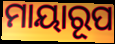
ମାୟାରୂପ